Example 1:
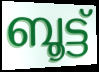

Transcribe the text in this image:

ബൂട്ട്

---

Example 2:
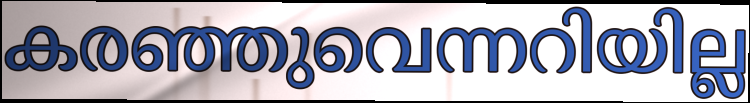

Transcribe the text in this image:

കരഞ്ഞുവെന്നറിയില്ല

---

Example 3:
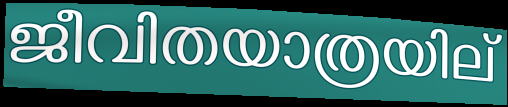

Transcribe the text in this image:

ജീവിതയാത്രയില്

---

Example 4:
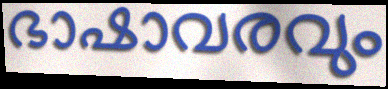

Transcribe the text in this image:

ഭാഷാവരവും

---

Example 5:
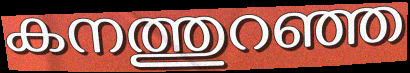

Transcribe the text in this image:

കനത്തുറഞ്ഞ